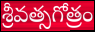
శ్రీవత్సగోత్రం